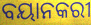
ବୟାନକରୀ